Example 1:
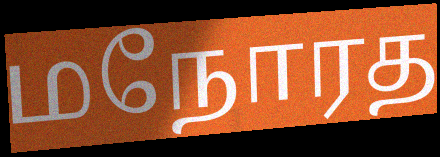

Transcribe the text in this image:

மநோரத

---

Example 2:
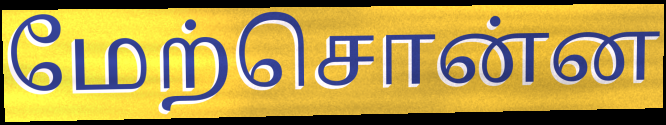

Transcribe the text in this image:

மேற்சொன்ன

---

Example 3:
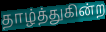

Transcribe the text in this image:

தாழ்த்துகின்ற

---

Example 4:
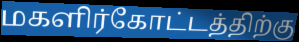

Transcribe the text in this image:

மகளிர்கோட்டத்திற்கு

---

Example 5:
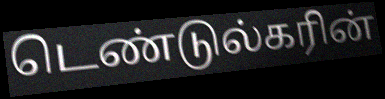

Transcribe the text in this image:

டெண்டுல்கரின்